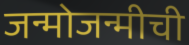
जन्मोजन्मीची